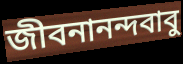
জীবনানন্দবাবু